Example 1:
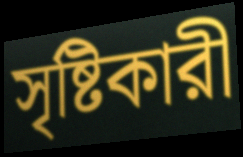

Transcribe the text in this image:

সৃষ্টিকারী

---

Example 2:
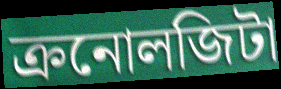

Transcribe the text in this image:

ক্রনোলজিটা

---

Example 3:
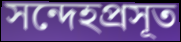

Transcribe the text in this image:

সন্দেহপ্রসূত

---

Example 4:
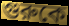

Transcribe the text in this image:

গুরুকে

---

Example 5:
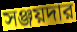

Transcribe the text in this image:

সঞ্জয়দার